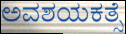
ಅವಶಯಕತ್ಸೆ